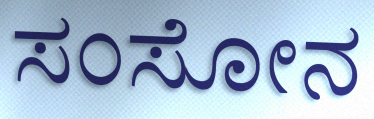
ಸಂಸೋನ